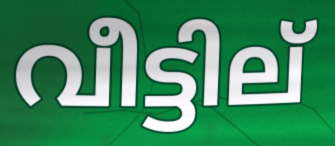
വീട്ടില്